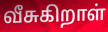
வீசுகிறாள்